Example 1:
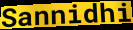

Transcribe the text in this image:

Sannidhi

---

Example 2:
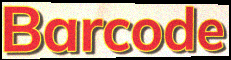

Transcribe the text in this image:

Barcode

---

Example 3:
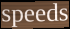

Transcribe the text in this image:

speeds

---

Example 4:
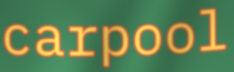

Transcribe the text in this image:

carpool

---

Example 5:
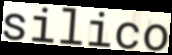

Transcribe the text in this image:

silico